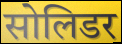
सोलिडर